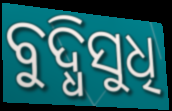
ବୁଦ୍ଧିସୁଧି